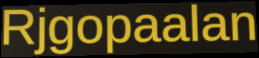
Rjgopaalan